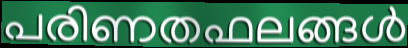
പരിണതഫലങ്ങൾ